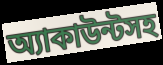
অ্যাকাউন্টসহ